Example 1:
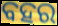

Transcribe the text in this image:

ବହର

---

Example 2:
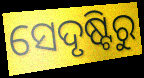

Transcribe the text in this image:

ସେଦୃଷ୍ଟିରୁ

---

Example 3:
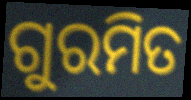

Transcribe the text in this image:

ଗୁରମିତ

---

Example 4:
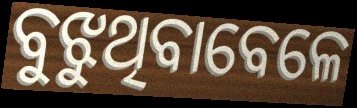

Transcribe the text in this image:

ବୁଝୁଥିବାବେଳେ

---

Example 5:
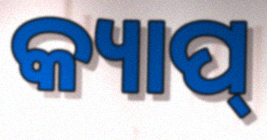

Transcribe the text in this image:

କ୍ୟାପ୍